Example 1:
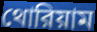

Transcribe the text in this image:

থোরিয়াম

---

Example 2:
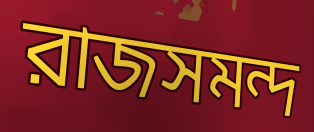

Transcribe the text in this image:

রাজসমন্দ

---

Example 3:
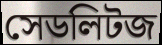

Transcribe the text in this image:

সেডলিটজ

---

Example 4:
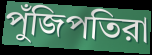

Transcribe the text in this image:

পুঁজিপতিরা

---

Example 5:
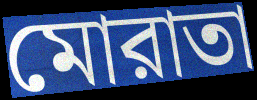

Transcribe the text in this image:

মোরাতা